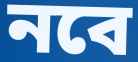
নবে